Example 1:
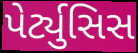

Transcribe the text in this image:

પેર્ટ્યુસિસ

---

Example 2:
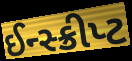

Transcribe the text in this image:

ઈન્સ્ક્રીપ્ટ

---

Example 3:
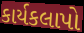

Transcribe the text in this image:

કાર્યકલાપો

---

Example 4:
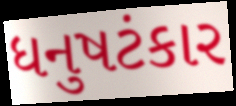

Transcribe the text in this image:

ધનુષટંકાર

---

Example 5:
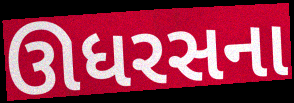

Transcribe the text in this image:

ઊધરસના